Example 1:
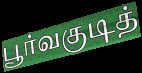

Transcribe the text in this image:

பூர்வகுடித்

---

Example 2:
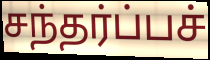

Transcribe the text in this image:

சந்தர்ப்பச்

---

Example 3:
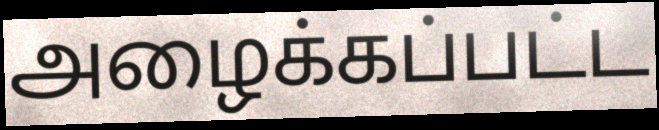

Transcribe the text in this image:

அழைக்கப்பட்ட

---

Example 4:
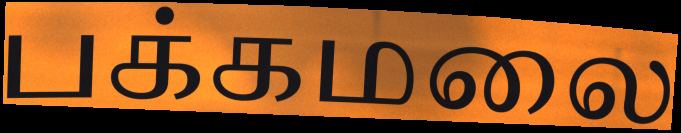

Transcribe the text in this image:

பக்கமலை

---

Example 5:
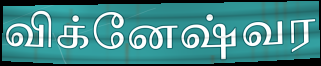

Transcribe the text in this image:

விக்னேஷ்வர